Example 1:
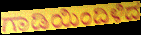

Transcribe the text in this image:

ಗಾಡಿಯಿಂದಿಳಿದ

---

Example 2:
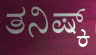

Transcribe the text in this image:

ತನಿಷ್ಕ್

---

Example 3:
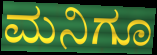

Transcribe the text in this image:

ಮನಿಗೂ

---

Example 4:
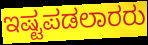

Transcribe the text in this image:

ಇಷ್ಟಪಡಲಾರರು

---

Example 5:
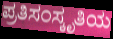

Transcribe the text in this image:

ಪ್ರತಿಸಂಸ್ಕೃತಿಯ